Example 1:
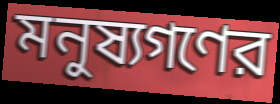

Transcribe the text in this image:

মনুষ্যগণের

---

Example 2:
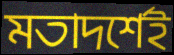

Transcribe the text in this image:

মতাদর্শেই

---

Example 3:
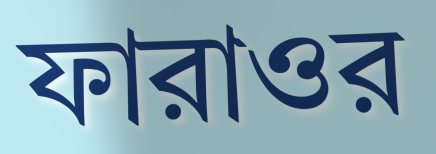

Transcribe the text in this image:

ফারাওর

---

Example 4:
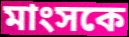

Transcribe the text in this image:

মাংসকে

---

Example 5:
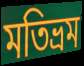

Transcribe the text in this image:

মতিভ্রম